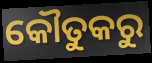
କୌତୁକରୁ